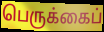
பெருக்கைப்